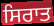
ਸਿਰਾਤ